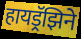
हायड्रॅझिने